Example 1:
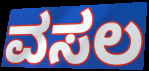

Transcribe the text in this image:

ವಸಲ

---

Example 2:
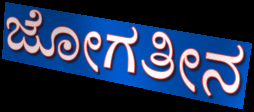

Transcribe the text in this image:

ಜೋಗತೀನ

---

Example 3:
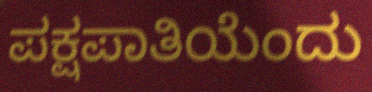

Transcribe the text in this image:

ಪಕ್ಷಪಾತಿಯೆಂದು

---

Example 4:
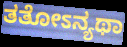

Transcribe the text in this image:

ತತೋಽನ್ಯಥಾ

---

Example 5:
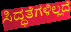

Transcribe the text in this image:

ಸಿದ್ಧತೆಗಳಿಲ್ಲದೆ